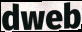
dweb